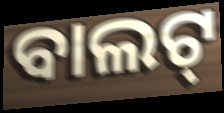
ବାଲଟ୍